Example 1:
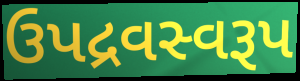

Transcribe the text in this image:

ઉપદ્રવસ્વરૂપ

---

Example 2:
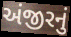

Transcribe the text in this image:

અંજીરનું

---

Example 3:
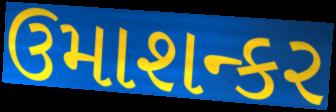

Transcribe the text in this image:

ઉમાશન્કર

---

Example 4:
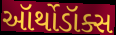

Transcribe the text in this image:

ઑર્થોડૉક્સ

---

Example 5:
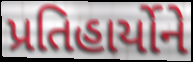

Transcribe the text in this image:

પ્રતિહાર્યોને